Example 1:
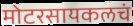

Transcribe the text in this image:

मोटरसायकलचं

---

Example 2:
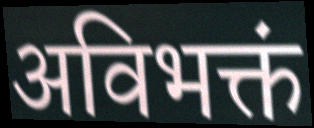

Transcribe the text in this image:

अविभक्तं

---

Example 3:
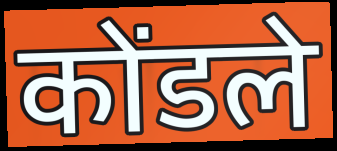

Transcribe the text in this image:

कोंडले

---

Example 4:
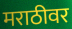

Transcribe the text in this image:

मराठीवर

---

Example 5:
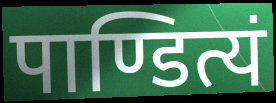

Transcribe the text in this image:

पाण्डित्यं